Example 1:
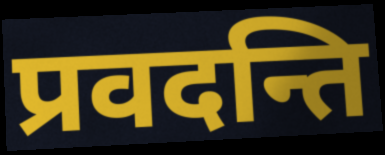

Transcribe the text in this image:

प्रवदन्ति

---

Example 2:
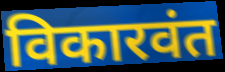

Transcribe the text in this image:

विकारवंत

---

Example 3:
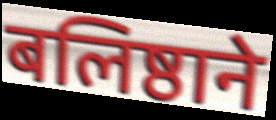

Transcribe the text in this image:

बलिष्ठाने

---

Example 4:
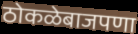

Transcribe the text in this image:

ठोकळेबाजपणा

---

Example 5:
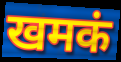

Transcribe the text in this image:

खमकं